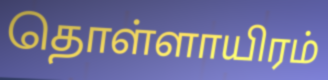
தொள்ளாயிரம்